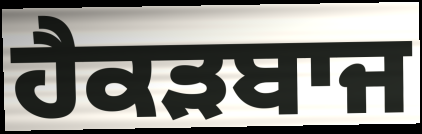
ਹੈਕੜਬਾਜ